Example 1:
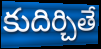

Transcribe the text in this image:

కుదిర్చితే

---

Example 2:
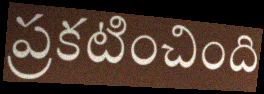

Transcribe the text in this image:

ప్రకటించింది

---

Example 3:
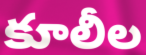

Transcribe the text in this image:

కూలీల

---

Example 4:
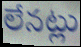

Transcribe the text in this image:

లేనట్లు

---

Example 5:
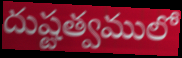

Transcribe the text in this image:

దుష్టత్వములో